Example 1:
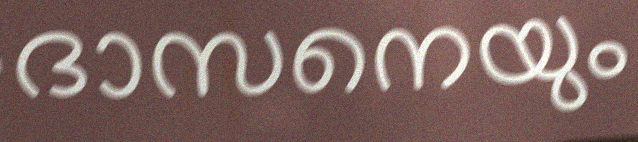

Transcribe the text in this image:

ദാസനെയും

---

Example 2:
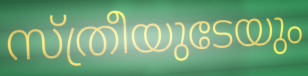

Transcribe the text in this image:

സ്ത്രീയുടേയും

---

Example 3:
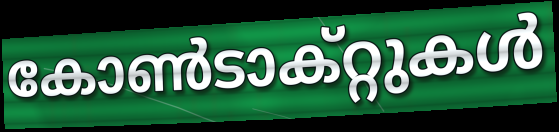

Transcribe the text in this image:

കോൺടാക്റ്റുകൾ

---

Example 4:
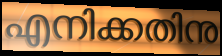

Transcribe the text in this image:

എനിക്കതിനു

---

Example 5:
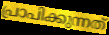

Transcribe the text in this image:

പ്രാപിക്കുന്നത്